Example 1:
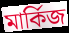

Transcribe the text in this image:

মার্কিজ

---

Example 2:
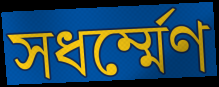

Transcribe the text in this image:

সধর্ম্মেণ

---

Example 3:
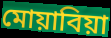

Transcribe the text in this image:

মোয়াবিয়া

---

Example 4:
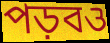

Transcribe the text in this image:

পড়বও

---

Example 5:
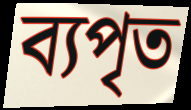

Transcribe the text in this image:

ব্যপৃত